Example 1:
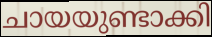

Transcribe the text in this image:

ചായയുണ്ടാക്കി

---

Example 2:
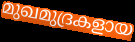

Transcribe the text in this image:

മുഖമുദ്രകളായ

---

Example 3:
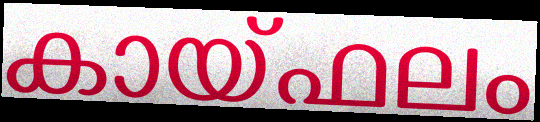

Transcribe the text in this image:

കായ്ഫലം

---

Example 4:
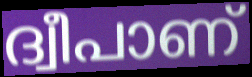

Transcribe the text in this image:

ദ്വീപാണ്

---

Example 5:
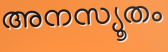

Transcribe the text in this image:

അനസ്യൂതം